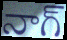
నాగ్